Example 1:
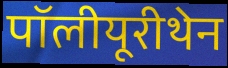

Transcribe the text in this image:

पॉलीयूरीथेन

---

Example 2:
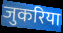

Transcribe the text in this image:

जुकरिया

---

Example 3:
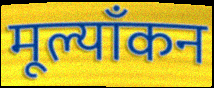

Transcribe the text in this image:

मूल्याँकन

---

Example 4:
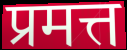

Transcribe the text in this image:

प्रमत्त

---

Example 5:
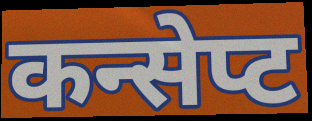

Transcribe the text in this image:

कन्सेप्ट